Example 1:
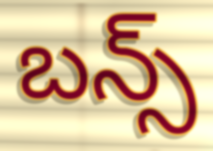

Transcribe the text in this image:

బన్స్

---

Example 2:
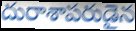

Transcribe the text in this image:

దురాశాపరుడైన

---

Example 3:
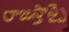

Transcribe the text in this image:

రాజస్తాన్పై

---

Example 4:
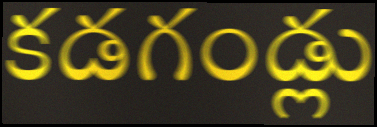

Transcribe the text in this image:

కడగండ్లు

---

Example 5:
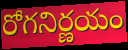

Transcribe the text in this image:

రోగనిర్ణయం